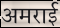
अमराई